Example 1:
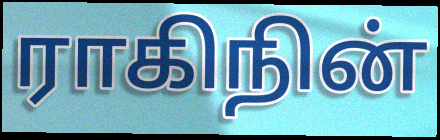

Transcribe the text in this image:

ராகிநின்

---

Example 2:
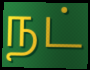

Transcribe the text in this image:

நட்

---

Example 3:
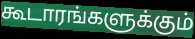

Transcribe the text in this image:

கூடாரங்களுக்கும்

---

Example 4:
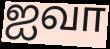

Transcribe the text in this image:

ஐவா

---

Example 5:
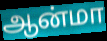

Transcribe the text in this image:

ஆன்மா